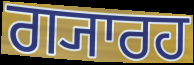
ਗ੍ਯਾਰਹ